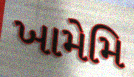
ખામેમિ